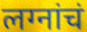
लग्नांचं